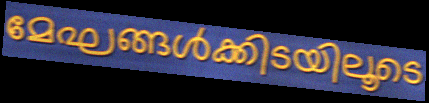
മേഘങ്ങൾക്കിടയിലൂടെ